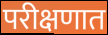
परीक्षणात